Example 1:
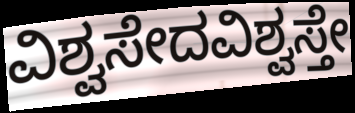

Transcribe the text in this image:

ವಿಶ್ವಸೇದವಿಶ್ವಸ್ತೇ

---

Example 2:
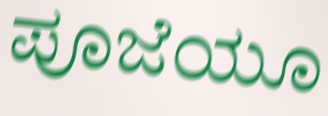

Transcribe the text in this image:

ಪೂಜೆಯೂ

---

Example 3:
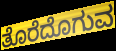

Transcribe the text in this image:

ತೊರೆದೊಗುವ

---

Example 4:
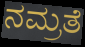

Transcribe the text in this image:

ನಮ್ರತೆ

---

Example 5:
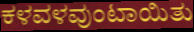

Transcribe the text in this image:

ಕಳವಳವುಂಟಾಯಿತು